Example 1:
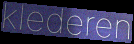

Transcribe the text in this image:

klederen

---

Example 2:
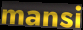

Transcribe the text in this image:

mansi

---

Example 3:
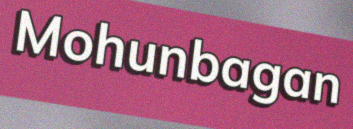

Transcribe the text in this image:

Mohunbagan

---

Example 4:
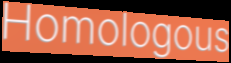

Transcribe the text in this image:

Homologous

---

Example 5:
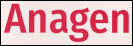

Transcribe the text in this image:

Anagen